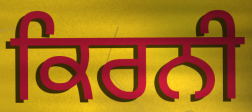
ਕਿਰਨੀ